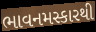
ભાવનમસ્કારથી